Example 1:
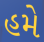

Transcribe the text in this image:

હમે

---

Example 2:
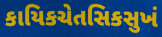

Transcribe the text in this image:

કાયિકચેતસિકસુખં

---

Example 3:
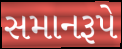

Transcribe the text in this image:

સમાનરૂપે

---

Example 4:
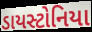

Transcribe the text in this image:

ડાયસ્ટોનિયા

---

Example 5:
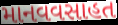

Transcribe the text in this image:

માનવવસાહત